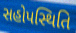
સહોપસ્થિતિ